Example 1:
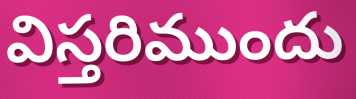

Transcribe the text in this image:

విస్తరిముందు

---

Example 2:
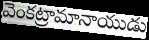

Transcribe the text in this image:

వెంకట్రామానాయుడు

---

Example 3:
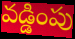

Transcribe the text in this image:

వడ్డింపు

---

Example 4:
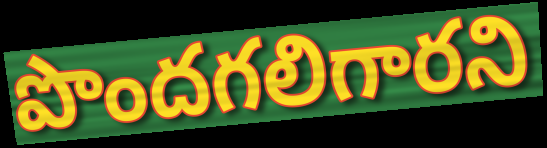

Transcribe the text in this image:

పొందగలిగారని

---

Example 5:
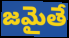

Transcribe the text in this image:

జమైతే